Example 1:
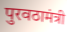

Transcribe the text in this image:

पुरवठामंत्री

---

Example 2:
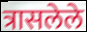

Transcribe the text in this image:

त्रासलेले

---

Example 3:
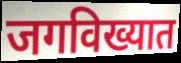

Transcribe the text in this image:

जगविख्यात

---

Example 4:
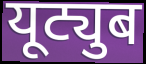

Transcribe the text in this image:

यूट्युब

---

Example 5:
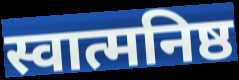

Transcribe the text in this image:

स्वात्मनिष्ठ